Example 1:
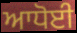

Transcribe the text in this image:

ਆਧੋਈ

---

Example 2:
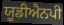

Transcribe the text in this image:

ਯੂਡੀਐਨਪੀ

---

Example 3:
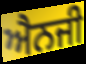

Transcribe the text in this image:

ਐਨਜੀ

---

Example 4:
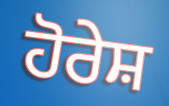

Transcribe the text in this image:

ਹੋਰੇਸ਼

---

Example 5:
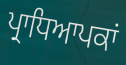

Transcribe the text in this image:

ਪ੍ਰਾਧਿਆਪਕਾਂ